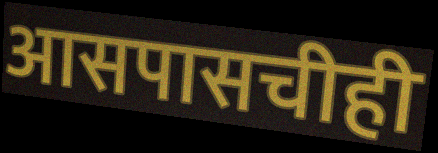
आसपासचीही